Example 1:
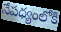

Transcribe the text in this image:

నేపధ్యంలోకి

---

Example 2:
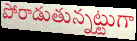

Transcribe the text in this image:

పోరాడుతున్నట్టుగా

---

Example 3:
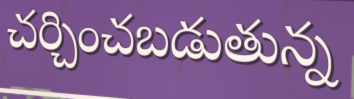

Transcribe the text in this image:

చర్చించబడుతున్న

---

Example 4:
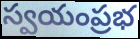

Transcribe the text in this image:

స్వయంప్రభ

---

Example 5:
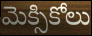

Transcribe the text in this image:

మెక్సికోలు